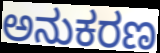
ಅನುಕರಣ